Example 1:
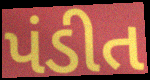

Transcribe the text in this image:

પંડીત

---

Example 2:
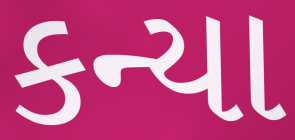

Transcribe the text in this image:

કન્યા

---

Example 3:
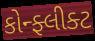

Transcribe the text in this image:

કોન્ફ્લીક્ટ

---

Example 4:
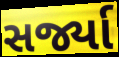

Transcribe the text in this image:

સર્જ્યા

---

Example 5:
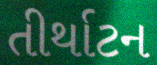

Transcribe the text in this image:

તીર્થાટન